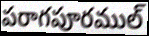
పరాగపూరముల్